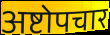
अष्टोपचार